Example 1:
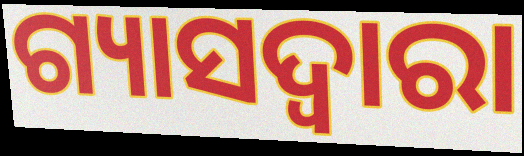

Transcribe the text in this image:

ଗ୍ୟାସଦ୍ଵାରା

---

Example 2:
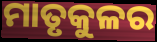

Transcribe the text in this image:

ମାତୃକୁଳର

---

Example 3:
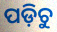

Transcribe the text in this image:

ପଡ଼ିଚୁ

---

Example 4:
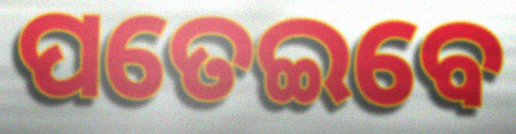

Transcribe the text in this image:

ପତେଇବେ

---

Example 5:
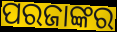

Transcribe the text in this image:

ପରଜାଙ୍କର